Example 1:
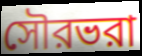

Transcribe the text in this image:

সৌরভরা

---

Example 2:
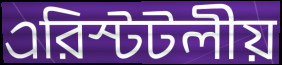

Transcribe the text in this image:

এরিস্টটলীয়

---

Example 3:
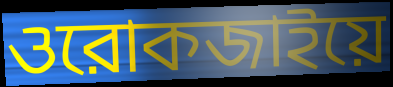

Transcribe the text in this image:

ওরোকজাইয়ে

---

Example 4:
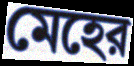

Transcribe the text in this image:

মেহের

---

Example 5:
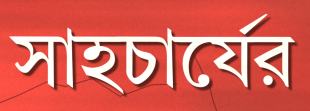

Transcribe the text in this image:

সাহচার্যের